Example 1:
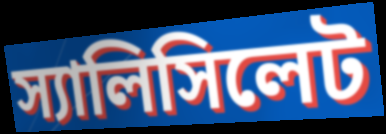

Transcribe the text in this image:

স্যালিসিলেট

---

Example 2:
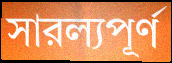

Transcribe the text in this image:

সারল্যপূর্ণ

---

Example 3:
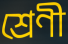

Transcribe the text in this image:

শ্রেণী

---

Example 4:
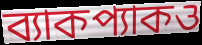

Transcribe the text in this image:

ব্যাকপ্যাকও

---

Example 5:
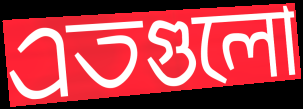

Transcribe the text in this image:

এতগুলো